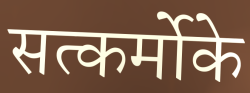
सत्कर्मोके